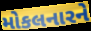
મોકલનારને